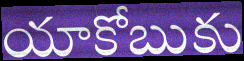
యాకోబుకు